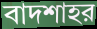
বাদশাহর